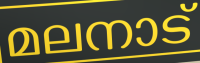
മലനാട്